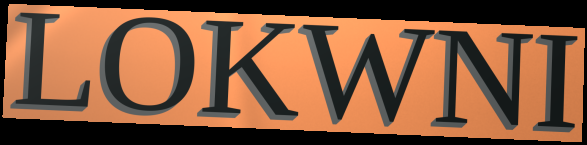
LOKWNI